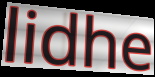
lidhe